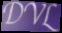
DVL